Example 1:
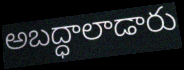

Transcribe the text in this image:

అబద్ధాలాడారు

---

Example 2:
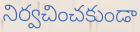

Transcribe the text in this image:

నిర్వచించకుండా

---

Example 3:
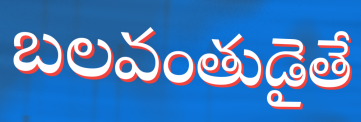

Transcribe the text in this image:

బలవంతుడైతే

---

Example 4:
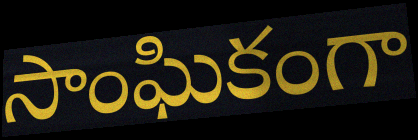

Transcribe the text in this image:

సాంఘికంగా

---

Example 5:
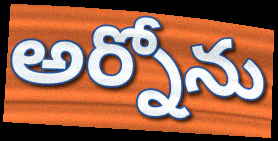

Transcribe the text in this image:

అర్నోను